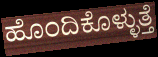
ಹೊಂದಿಕೊಳ್ಳುತ್ತೆ